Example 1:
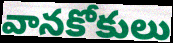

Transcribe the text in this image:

వానకోకులు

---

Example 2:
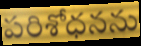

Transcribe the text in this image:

పరిశోధనను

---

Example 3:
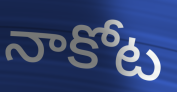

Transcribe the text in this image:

నాకోట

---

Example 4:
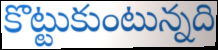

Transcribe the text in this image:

కొట్టుకుంటున్నది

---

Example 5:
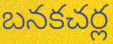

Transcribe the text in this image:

బనకచర్ల